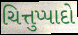
ચિત્તુપ્પાદો